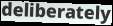
deliberately